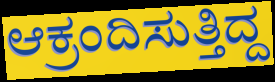
ಆಕ್ರಂದಿಸುತ್ತಿದ್ದ